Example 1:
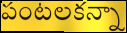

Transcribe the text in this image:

పంటలకన్నా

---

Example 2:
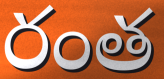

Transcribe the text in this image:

రంత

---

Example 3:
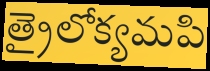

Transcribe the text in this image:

త్రైలోక్యమపి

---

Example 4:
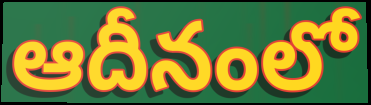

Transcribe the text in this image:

ఆదీనంలో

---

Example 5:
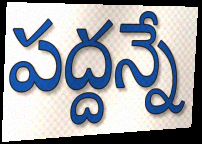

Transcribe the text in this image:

పద్దన్నే